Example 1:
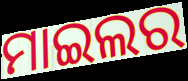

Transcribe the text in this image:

ମାଇଲର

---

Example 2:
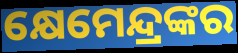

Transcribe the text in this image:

କ୍ଷେମେନ୍ଦ୍ରଙ୍କର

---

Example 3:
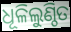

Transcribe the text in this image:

ଧୂଳିଲୁଣ୍ଠିତ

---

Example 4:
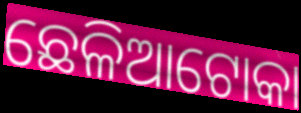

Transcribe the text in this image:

ଛେଳିଆଟୋକା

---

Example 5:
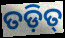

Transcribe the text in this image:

ତଡ଼ିତ୍